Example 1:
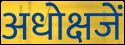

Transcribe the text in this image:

अधोक्षजें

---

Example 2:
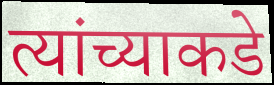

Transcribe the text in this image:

त्यांच्याकडे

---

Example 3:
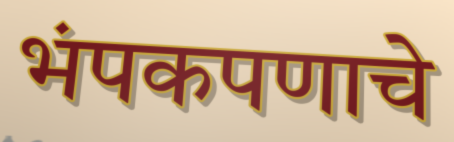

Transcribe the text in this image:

भंपकपणाचे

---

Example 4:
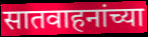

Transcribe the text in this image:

सातवाहनांच्या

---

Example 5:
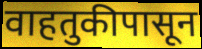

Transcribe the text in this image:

वाहतुकीपासून